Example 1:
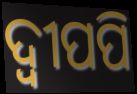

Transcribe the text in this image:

ଦ୍ବୀପପି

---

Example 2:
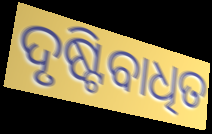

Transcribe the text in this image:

ଦୃଷ୍ଟିବାଧିତ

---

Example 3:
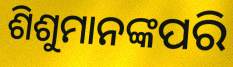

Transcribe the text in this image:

ଶିଶୁମାନଙ୍କପରି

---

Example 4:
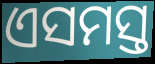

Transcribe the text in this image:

ଏସମସ୍ତ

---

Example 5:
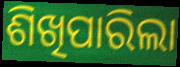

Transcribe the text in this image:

ଶିଖିପାରିଲା